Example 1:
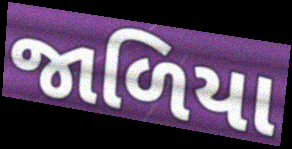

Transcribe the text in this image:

જાળિયા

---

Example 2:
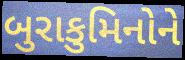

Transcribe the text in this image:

બુરાકુમિનોને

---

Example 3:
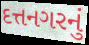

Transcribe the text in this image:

દત્તનગરનું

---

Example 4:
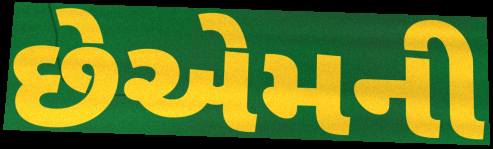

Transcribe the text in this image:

છેએમની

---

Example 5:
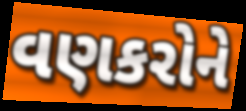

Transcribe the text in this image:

વણકરોને